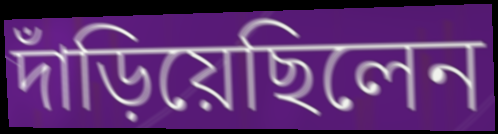
দাঁড়িয়েছিলেন